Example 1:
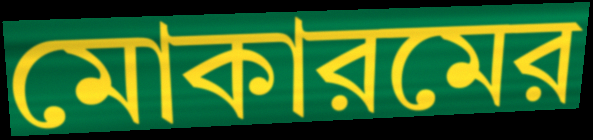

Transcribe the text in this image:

মোকারমের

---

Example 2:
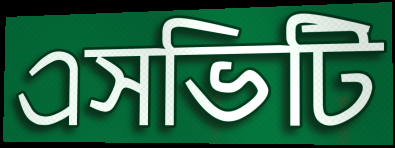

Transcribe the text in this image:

এসভিটি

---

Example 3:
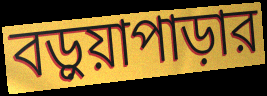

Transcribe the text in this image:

বড়ুয়াপাড়ার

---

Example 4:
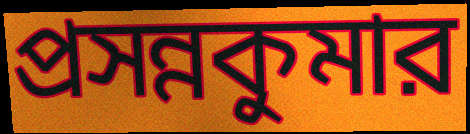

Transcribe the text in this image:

প্রসন্নকুমার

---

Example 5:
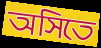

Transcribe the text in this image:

অসিতে